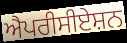
ਐਪਰੀਸੀਏਸ਼ਨ